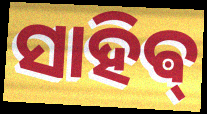
ସାହିଵ୍